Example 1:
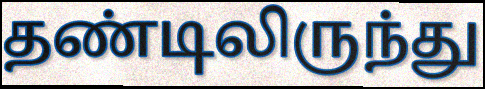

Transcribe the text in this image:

தண்டிலிருந்து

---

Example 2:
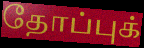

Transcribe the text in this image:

தோப்புக்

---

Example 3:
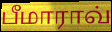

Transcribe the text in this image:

பீமாராவ்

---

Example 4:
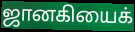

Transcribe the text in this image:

ஜானகியைக்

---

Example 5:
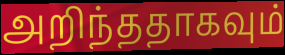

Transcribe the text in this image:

அறிந்ததாகவும்